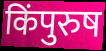
किंपुरुष